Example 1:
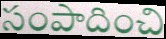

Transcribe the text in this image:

సంపాదించి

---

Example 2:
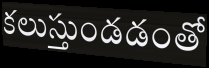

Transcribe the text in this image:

కలుస్తుండడంతో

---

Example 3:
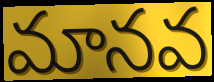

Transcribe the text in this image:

మానవ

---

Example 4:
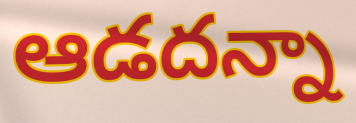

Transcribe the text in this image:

ఆడదన్నా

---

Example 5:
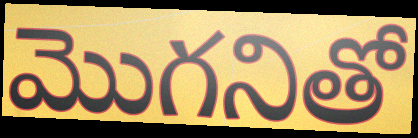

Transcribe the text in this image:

మొగనితో